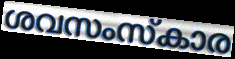
ശവസംസ്‌കാര